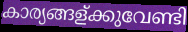
കാര്യങ്ങള്ക്കുവേണ്ടി